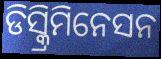
ଡିସ୍କ୍ରିମିନେସନ